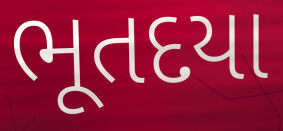
ભૂતદયા